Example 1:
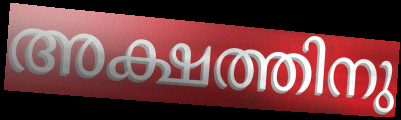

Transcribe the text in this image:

അക്ഷത്തിനു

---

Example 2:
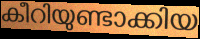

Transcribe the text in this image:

കീറിയുണ്ടാക്കിയ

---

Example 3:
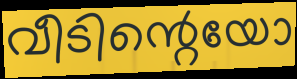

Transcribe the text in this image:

വീടിന്റെയോ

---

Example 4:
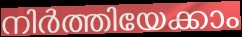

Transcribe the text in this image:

നിർത്തിയേക്കാം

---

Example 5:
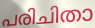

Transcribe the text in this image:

പരിചിതാ